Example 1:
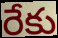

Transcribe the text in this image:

రేకు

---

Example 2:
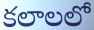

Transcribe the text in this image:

కలాలలో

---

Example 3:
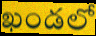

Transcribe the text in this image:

ఖండలో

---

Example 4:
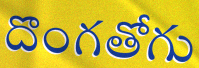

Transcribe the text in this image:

దొంగతోగు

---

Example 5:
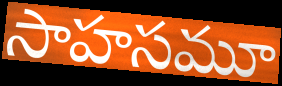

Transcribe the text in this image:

సాహసమూ